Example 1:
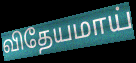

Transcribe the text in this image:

விதேயமாய்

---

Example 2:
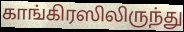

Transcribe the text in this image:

காங்கிரஸிலிருந்து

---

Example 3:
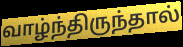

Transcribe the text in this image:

வாழ்ந்திருந்தால்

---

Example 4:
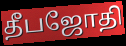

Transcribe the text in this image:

தீபஜோதி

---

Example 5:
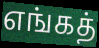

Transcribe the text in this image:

எங்கத்